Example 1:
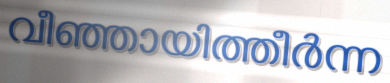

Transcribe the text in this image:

വീഞ്ഞായിത്തീർന്ന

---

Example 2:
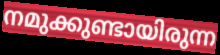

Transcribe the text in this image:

നമുക്കുണ്ടായിരുന്ന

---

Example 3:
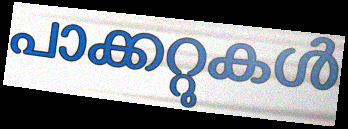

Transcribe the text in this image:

പാക്കറ്റുകൾ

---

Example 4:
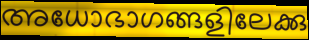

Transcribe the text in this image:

അധോഭാഗങ്ങളിലേക്കു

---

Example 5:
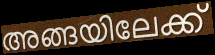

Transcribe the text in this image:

അങ്ങയിലേക്ക്